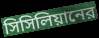
সিসিলিয়ানের